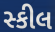
સ્કીલ